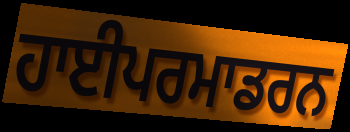
ਹਾਈਪਰਮਾਡਰਨ